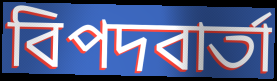
বিপদবার্তা